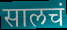
सालचं